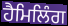
ਹੈਮਿਲਿੰਗ